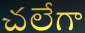
చలేగా